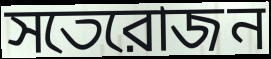
সতেরোজন